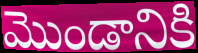
మొండానికి